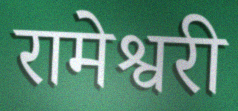
रामेश्वरी